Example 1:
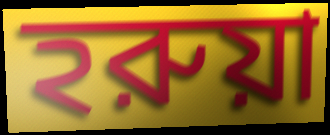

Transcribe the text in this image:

হরুয়া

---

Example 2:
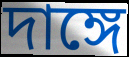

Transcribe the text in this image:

দাঙ্গে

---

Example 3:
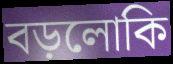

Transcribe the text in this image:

বড়লোকি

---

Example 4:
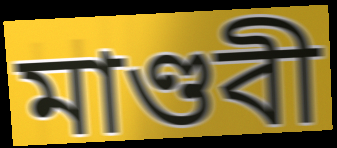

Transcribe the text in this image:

মাণ্ডবী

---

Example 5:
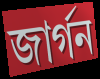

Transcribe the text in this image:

জার্গন